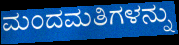
ಮಂದಮತಿಗಳನ್ನು